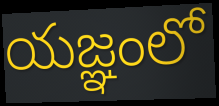
యజ్ఞంలో